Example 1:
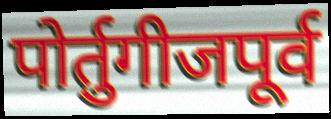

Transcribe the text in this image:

पोर्तुगीजपूर्व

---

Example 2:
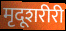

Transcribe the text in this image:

मृदूशरीरी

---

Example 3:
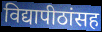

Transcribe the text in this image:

विद्यापीठांसह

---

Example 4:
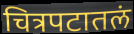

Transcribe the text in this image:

चित्रपटातलं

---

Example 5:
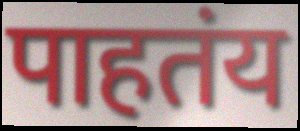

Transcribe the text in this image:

पाहतंय